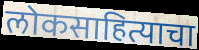
लोकसाहित्याचा